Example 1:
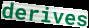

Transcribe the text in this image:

derives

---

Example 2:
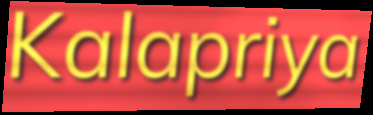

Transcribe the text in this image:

Kalapriya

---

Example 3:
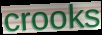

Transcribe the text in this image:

crooks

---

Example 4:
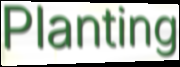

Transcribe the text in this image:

Planting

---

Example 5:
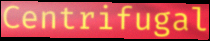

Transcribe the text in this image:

Centrifugal